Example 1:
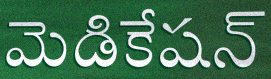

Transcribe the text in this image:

మెడికేషన్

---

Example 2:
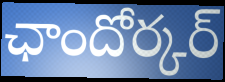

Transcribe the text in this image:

ఛాందోర్కర్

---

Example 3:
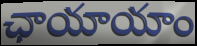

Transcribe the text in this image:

ఛాయాయాం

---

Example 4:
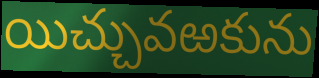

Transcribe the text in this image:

యిచ్చువఱకును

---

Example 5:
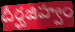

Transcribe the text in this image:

దీర్ఘజిహ్వం